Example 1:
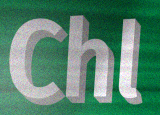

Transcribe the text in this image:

Chl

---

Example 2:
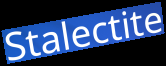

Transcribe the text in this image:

Stalectite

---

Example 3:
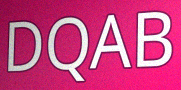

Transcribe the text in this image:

DQAB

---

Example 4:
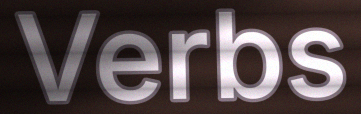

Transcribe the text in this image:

Verbs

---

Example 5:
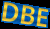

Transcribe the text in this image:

DBE